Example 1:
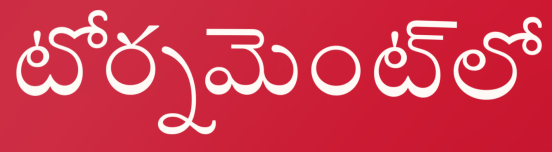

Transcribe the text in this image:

టోర్నమెంట్‌లో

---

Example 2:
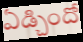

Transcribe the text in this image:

ఏడ్చిందో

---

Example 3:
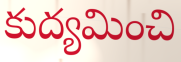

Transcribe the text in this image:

కుద్యమించి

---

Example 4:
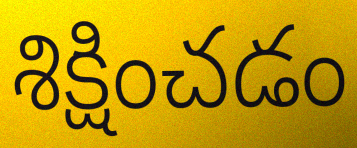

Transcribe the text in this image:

శిక్షించడం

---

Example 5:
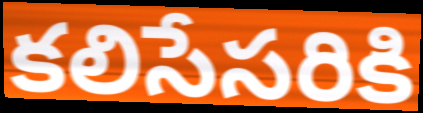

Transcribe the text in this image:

కలిసేసరికి